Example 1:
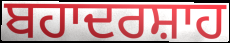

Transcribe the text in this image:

ਬਹਾਦਰਸ਼ਾਹ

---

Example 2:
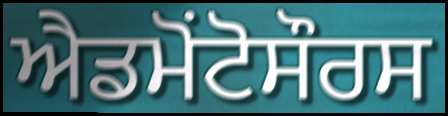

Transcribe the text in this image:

ਐਡਮੋਂਟੋਸੌਰਸ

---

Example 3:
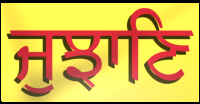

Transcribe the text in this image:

ਜੁਝਾਣਿ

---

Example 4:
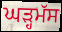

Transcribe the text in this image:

ਘੜ੍ਹਮੱਸ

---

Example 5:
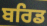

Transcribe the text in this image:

ਬਰਿਡ